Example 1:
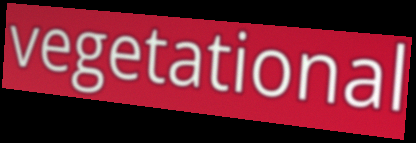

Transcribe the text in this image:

vegetational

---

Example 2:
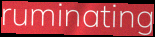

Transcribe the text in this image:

ruminating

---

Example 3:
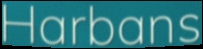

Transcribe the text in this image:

Harbans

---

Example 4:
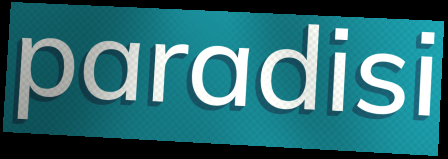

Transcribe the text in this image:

paradisi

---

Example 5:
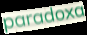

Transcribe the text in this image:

paradoxa